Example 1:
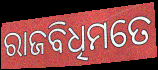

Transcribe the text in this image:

ରାଜବିଧିମତେ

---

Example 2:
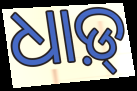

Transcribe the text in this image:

ଧାଡ଼୍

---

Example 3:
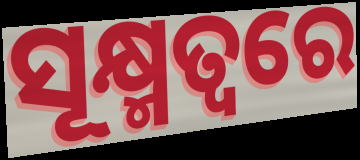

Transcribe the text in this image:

ସୂକ୍ଷ୍ମତ୍ୱରେ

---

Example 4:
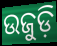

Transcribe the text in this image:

ଉଜୁଡ଼ି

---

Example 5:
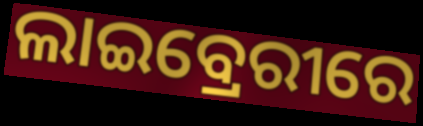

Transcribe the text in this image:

ଲାଇବ୍ରେରୀରେ